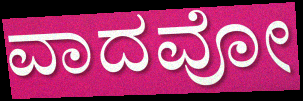
ವಾದವೋ